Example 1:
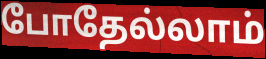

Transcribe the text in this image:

போதேல்லாம்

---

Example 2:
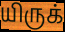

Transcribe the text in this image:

யிருக்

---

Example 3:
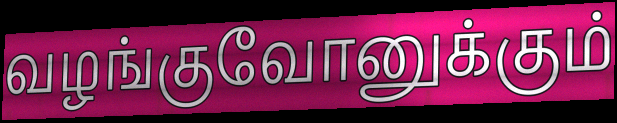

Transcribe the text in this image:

வழங்குவோனுக்கும்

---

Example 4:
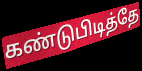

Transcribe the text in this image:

கண்டுபிடித்தே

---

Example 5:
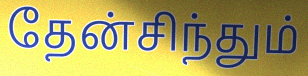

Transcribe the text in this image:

தேன்சிந்தும்